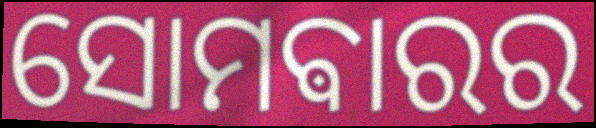
ସୋମଵାରର